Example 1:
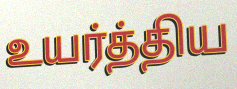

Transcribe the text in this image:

உயர்த்திய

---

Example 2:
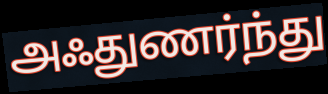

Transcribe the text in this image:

அஃதுணர்ந்து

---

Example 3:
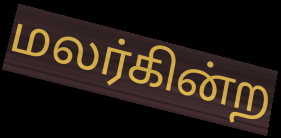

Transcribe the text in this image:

மலர்கின்ற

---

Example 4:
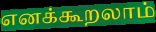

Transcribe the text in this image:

எனக்கூறலாம்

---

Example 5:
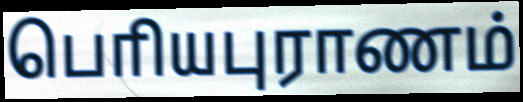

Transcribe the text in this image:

பெரியபுராணம்